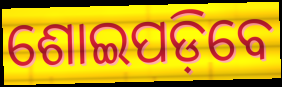
ଶୋଇପଡ଼ିବେ